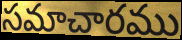
సమాచారము